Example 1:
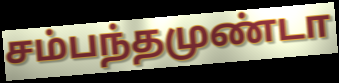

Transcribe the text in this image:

சம்பந்தமுண்டா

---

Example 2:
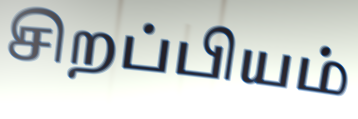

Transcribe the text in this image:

சிறப்பியம்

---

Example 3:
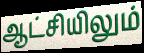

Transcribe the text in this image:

ஆட்சியிலும்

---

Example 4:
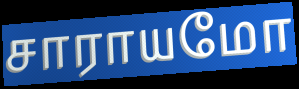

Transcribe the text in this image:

சாராயமோ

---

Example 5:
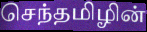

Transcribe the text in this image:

செந்தமிழின்